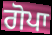
ਗੋਪਾ